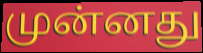
முன்னது